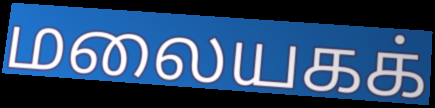
மலையகக்